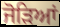
ਜੋੜਿਆਂ